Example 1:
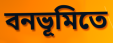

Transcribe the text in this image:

বনভূমিতে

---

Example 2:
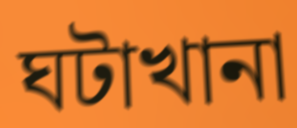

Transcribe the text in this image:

ঘটাখানা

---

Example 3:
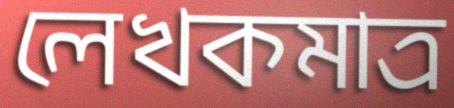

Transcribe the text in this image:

লেখকমাত্র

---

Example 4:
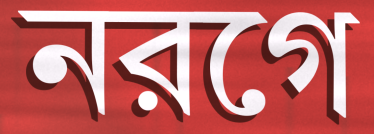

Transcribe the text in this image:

নরগে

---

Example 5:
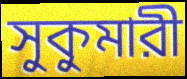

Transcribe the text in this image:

সুকুমারী